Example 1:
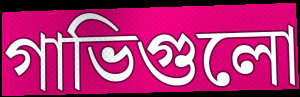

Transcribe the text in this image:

গাভিগুলো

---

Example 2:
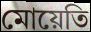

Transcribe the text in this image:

মোয়েতি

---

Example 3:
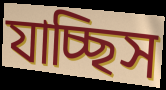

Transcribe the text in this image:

যাচ্ছিস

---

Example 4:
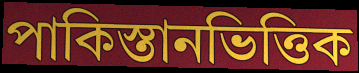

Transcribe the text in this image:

পাকিস্তানভিত্তিক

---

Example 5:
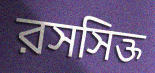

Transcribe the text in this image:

রসসিক্ত